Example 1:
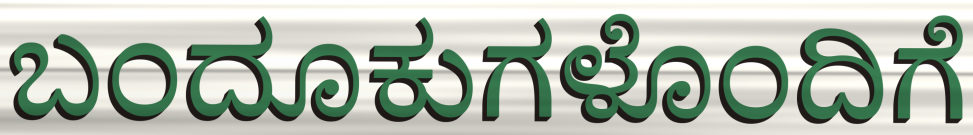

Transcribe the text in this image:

ಬಂದೂಕುಗಳೊಂದಿಗೆ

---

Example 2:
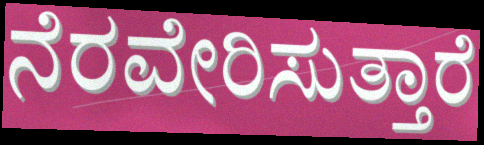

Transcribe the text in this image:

ನೆರವೇರಿಸುತ್ತಾರೆ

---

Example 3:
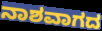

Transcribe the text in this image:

ನಾಶವಾಗದ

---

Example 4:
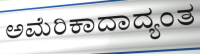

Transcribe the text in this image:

ಅಮೆರಿಕಾದಾದ್ಯಂತ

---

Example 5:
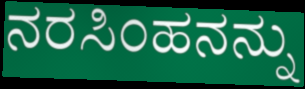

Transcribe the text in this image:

ನರಸಿಂಹನನ್ನು